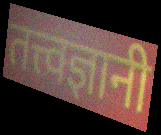
तत्त्वज्ञानी